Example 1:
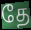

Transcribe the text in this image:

தே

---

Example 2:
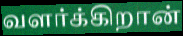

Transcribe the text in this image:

வளர்க்கிறான்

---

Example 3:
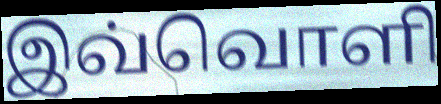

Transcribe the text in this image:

இவ்வொளி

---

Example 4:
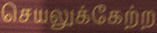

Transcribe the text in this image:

செயலுக்கேற்ற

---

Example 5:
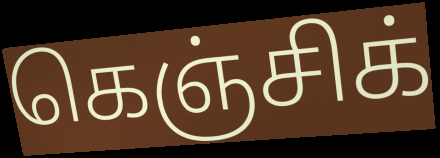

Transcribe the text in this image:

கெஞ்சிக்